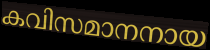
കവിസമാനനായ